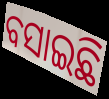
ବସାଇଛି